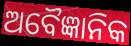
ଅବୈଜ୍ଞାନିକ